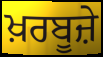
ਖ਼ਰਬੂਜ਼ੇ